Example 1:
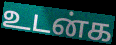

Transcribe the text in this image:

உடன்க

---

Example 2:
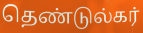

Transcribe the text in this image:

தெண்டுல்கர்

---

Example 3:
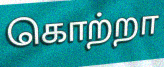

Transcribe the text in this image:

கொற்றா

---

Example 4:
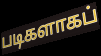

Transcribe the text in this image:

படிகளாகப்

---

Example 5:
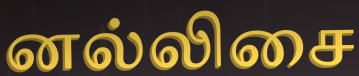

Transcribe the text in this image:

னல்லிசை